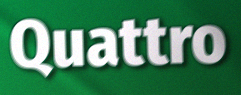
Quattro